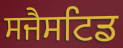
ਸਜੈਸਟਿਡ